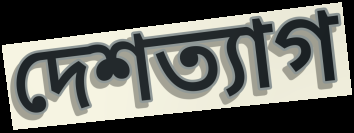
দেশত্যাগ